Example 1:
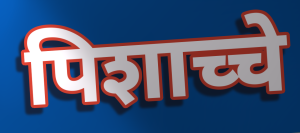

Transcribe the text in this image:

पिशाच्चे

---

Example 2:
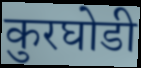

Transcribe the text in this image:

कुरघोडी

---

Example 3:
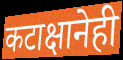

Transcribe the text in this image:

कटाक्षानेही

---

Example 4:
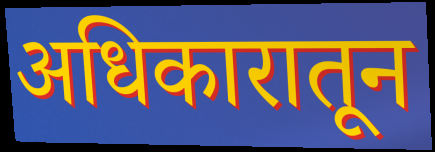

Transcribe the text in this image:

अधिकारातून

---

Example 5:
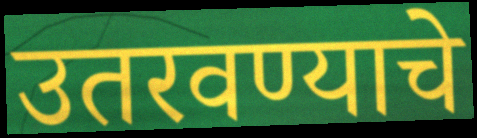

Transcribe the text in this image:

उतरवण्याचे